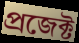
প্রজেক্ট